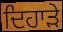
ਦਿਹਾਡ਼ੇ